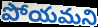
పోయమని